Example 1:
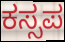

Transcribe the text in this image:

ಕಸ್ಸಪ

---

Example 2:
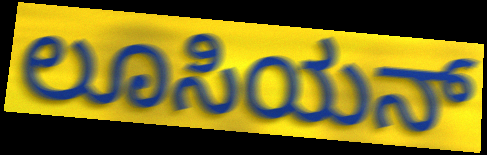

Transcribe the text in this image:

ಲೂಸಿಯನ್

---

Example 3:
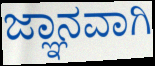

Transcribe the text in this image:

ಜ್ಞಾನವಾಗಿ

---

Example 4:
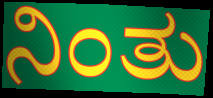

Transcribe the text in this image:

ನಿಂತು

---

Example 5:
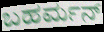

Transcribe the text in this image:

ಬಹರ್ಮನ್